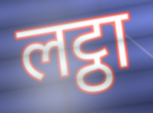
लट्ठा